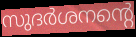
സുദർശനന്റെ